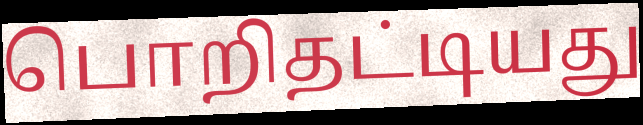
பொறிதட்டியது